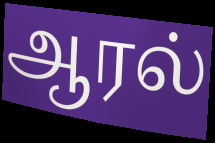
ஆரல்